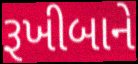
રૂખીબાને